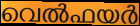
വെൽഫയർ